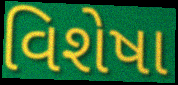
વિશેષા